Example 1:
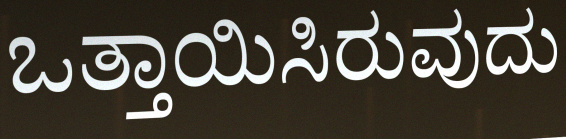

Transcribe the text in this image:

ಒತ್ತಾಯಿಸಿರುವುದು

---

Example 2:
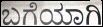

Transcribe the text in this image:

ಬಗೆಯಾಗಿ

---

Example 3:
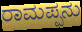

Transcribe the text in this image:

ರಾಮಪ್ಪನು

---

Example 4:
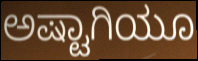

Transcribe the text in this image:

ಅಷ್ಟಾಗಿಯೂ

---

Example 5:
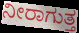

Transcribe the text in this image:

ನೀರಾಗುತ್ತ